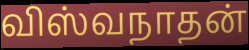
விஸ்வநாதன்